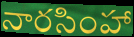
నారసింహా